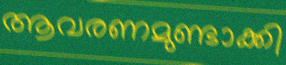
ആവരണമുണ്ടാക്കി